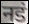
नडं